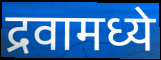
द्रवामध्ये